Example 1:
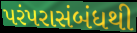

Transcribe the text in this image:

પરંપરાસંબંધથી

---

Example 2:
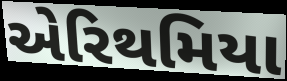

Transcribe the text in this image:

એરિથમિયા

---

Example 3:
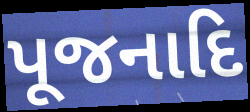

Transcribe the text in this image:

પૂજનાદિ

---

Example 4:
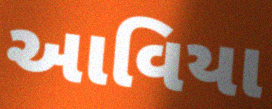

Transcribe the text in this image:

આવિયા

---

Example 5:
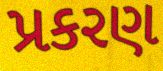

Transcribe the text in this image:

પ્રકરણ